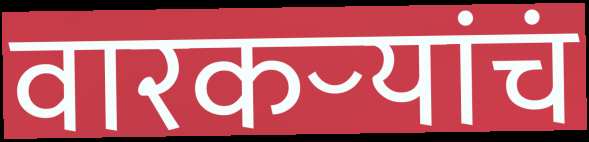
वारकऱ्यांचं